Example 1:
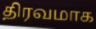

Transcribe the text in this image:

திரவமாக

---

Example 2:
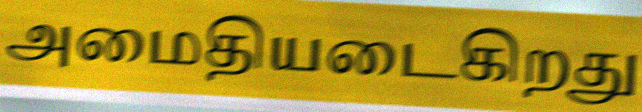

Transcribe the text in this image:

அமைதியடைகிறது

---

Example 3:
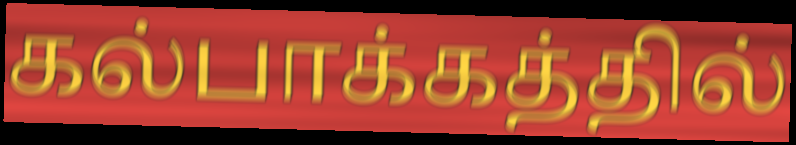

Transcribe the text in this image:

கல்பாக்கத்தில்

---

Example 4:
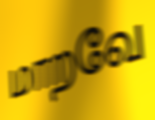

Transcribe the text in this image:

மாறவே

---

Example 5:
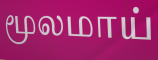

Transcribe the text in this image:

மூலமாய்